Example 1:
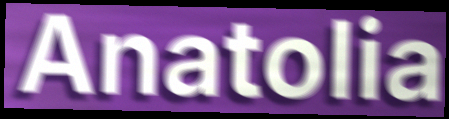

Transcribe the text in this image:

Anatolia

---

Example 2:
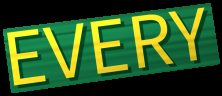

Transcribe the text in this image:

EVERY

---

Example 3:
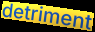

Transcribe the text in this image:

detriment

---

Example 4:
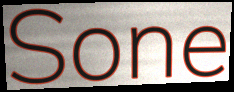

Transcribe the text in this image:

Sone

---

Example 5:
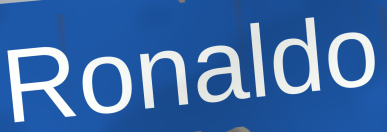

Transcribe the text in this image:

Ronaldo